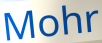
Mohr